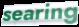
searing